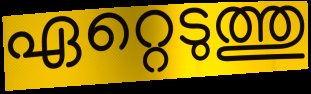
ഏറ്റെടുത്തു